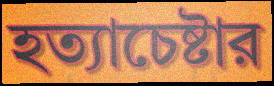
হত্যাচেষ্টার